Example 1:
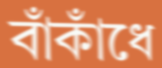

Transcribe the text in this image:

বাঁকাঁধে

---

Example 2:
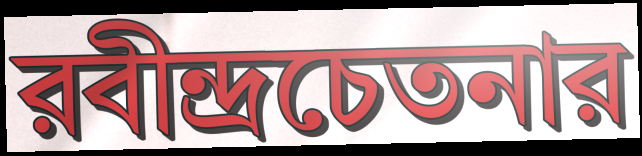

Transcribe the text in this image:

রবীন্দ্রচেতনার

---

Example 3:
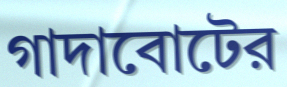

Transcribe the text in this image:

গাদাবোটের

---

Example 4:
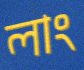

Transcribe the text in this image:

লাং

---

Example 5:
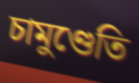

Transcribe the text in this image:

চামুণ্ডেতি